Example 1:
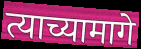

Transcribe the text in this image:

त्याच्यामागे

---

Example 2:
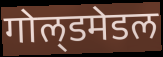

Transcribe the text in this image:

गोल्डमेडल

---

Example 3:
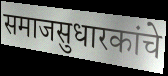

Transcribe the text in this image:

समाजसुधारकांचे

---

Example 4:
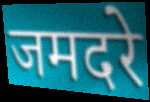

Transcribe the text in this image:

जमदरे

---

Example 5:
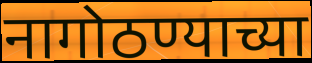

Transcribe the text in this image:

नागोठण्याच्या